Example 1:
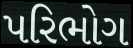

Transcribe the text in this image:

પરિભોગ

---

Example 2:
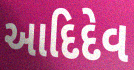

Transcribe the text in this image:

આદિદેવ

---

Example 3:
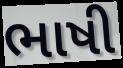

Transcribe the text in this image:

ભાષી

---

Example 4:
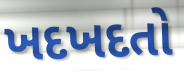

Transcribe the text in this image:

ખદખદતો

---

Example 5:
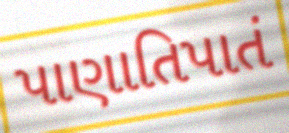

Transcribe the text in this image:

પાણાતિપાતં